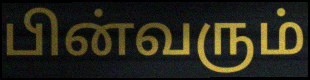
பின்வரும்